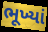
ભૂખ્યાં